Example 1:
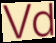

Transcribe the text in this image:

Vd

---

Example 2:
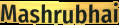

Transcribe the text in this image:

Mashrubhai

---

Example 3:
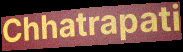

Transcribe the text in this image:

Chhatrapati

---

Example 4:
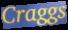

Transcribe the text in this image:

Craggs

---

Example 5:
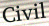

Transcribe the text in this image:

Civil